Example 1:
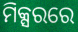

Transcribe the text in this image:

ମିକ୍ସରରେ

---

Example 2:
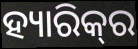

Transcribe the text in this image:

ହ୍ୟାରିକ୍‌ର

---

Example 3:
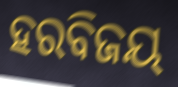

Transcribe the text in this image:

ହରବିଜୟ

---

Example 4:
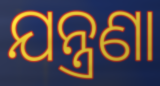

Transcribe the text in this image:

ଯନ୍ତ୍ରଣା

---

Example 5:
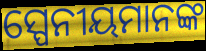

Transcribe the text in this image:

ସ୍ପେନୀୟମାନଙ୍କ